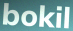
bokil